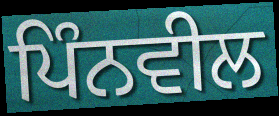
ਪਿੰਨਵੀਲ